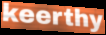
keerthy